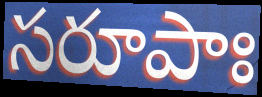
సరూపాః